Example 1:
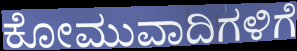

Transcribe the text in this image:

ಕೋಮುವಾದಿಗಳಿಗೆ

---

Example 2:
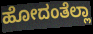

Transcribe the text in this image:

ಹೋದಂತೆಲ್ಲಾ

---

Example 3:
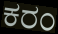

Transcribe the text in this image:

ಕರಂ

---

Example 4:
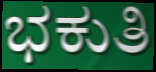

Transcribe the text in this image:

ಭಕುತಿ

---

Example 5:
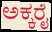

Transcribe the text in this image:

ಅಕ್ಕರೈ